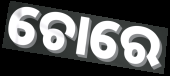
ଚୋରେ